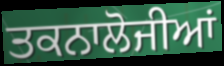
ਤਕਨਾਲੋਜੀਆਂ